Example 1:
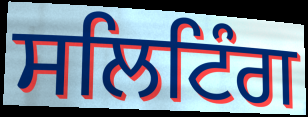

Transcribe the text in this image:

ਸਲਿਟਿੰਗ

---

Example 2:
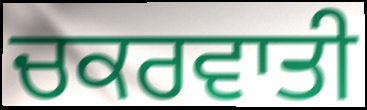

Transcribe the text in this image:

ਚਕਰਵਾਤੀ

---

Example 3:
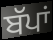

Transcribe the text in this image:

ਬੱਪਾਂ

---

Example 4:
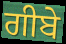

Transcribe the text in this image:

ਗੀਬੇ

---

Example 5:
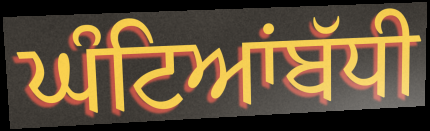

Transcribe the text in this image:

ਘੰਟਿਆਂਬੱਧੀ